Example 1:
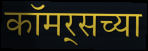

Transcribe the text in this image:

कॉमर्सच्या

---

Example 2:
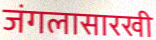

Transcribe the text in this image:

जंगलासारखी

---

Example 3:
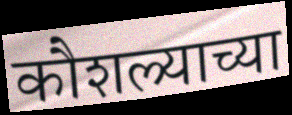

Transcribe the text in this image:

कौशल्याच्या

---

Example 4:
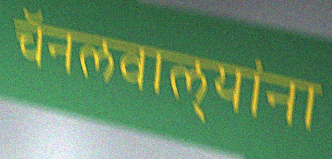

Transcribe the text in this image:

चॅनलवाल्यांना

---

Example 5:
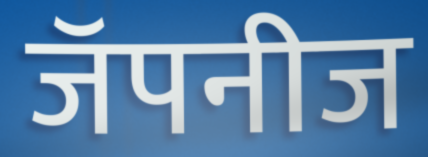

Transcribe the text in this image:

जॅपनीज